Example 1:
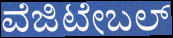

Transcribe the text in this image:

ವೆಜಿಟೇಬಲ್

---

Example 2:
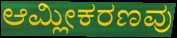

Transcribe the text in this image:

ಆಮ್ಲೀಕರಣವು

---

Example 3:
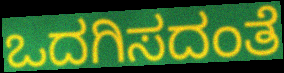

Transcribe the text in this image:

ಒದಗಿಸದಂತೆ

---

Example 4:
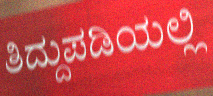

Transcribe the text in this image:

ತಿದ್ದುಪಡಿಯಲ್ಲಿ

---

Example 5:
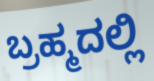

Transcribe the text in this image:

ಬ್ರಹ್ಮದಲ್ಲಿ